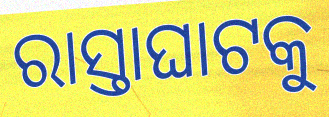
ରାସ୍ତାଘାଟକୁ